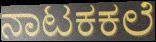
ನಾಟಕಕಲೆ